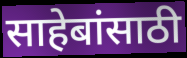
साहेबांसाठी